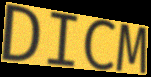
DICM